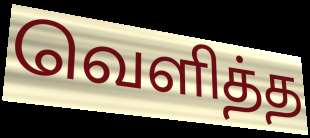
வெளித்த